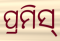
ପ୍ରମିସ୍